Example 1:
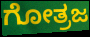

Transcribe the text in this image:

ಗೋತ್ರಜ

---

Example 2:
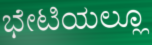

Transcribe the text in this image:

ಭೇಟಿಯಲ್ಲೂ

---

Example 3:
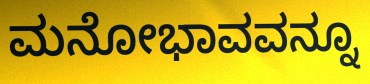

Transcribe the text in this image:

ಮನೋಭಾವವನ್ನೂ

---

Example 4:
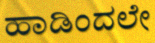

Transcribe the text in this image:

ಹಾಡಿಂದಲೇ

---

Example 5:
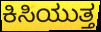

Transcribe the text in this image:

ಕಿಸಿಯುತ್ತ